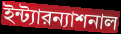
ইন্ট্যারন্যাশনাল